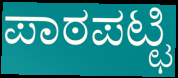
ಪಾಠಪಟ್ಟಿ